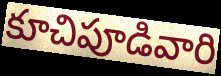
కూచిపూడివారి